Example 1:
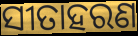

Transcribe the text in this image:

ସୀତାହରଣ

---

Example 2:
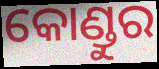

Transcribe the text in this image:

କୋଣ୍ଡୁର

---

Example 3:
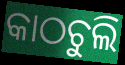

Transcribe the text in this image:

କାଠଚୁଲି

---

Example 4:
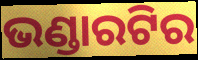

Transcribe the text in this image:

ଭଣ୍ଡାରଟିର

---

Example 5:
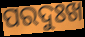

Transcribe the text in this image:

ପରଦୁଃଖ